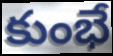
కుంభే